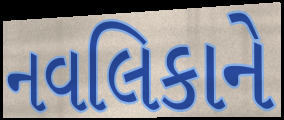
નવલિકાને